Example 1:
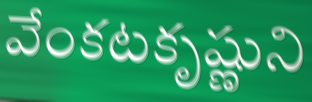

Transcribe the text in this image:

వేంకటకృష్ణుని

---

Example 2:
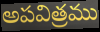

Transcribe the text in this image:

అపవిత్రము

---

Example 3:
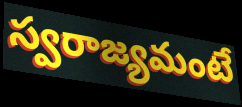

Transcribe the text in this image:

స్వరాజ్యమంటే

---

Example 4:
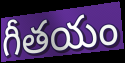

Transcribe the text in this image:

గీతయం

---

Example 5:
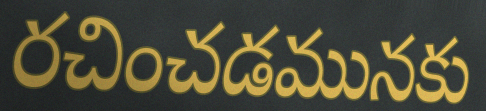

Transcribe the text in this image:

రచించడమునకు